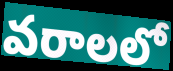
వరాలలో